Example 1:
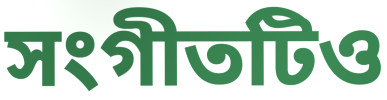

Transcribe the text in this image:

সংগীতটিও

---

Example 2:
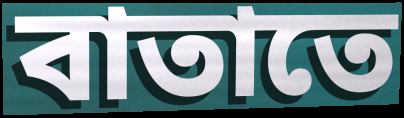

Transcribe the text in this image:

বাতাতে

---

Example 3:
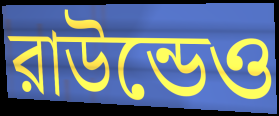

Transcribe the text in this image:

রাউন্ডেও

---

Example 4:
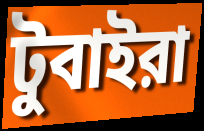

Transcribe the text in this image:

টুবাইরা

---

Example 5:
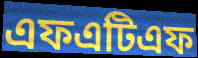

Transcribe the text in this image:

এফএটিএফ